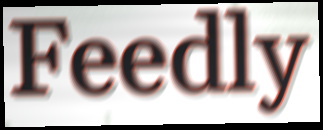
Feedly